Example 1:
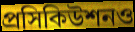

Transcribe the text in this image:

প্রসিকিউশনও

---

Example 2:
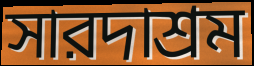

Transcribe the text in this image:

সারদাশ্রম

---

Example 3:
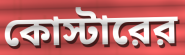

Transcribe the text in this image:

কোস্টারের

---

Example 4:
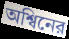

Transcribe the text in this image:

অশ্বিনের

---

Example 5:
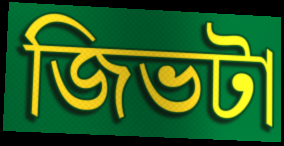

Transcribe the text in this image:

জিভটা